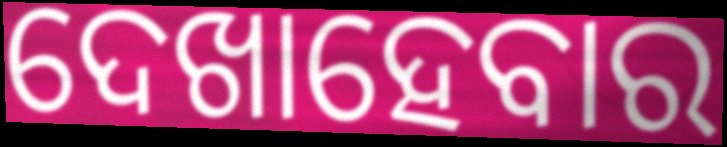
ଦେଖାହେବାର